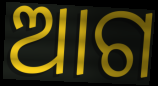
ଆଗ